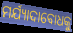
ମର୍ଯ୍ୟାଦାବୋଧକୁ